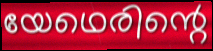
യേഥെരിന്റെ